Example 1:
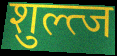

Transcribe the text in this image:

शुल्त्ज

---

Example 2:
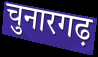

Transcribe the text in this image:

चुनारगढ़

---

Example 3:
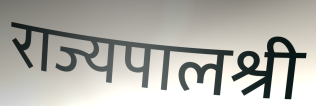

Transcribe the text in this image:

राज्यपालश्री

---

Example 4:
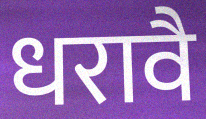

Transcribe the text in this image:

धरावै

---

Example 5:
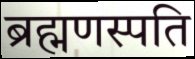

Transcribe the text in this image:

ब्रह्मणस्पति